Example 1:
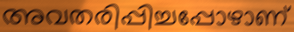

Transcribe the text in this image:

അവതരിപ്പിച്ചപ്പോഴാണ്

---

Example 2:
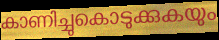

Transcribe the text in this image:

കാണിച്ചുകൊടുക്കുകയും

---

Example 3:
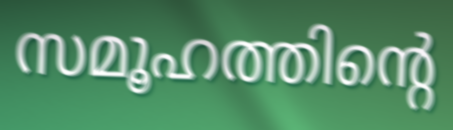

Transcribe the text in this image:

സമൂഹത്തിന്റെ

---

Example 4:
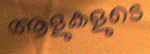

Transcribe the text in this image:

ആളുകളുടെ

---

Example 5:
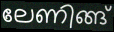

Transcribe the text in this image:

ലേണിങ്ങ്